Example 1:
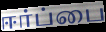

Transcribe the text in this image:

ஈர்ப்பை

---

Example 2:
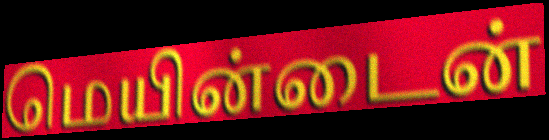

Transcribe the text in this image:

மெயின்டைன்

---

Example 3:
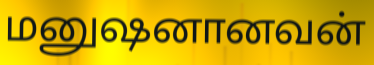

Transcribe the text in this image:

மனுஷனானவன்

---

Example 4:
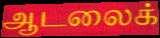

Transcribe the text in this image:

ஆடலைக்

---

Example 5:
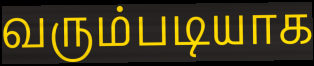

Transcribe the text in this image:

வரும்படியாக